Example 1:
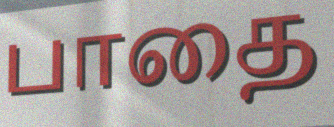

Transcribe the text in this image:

பாதை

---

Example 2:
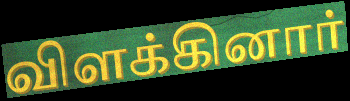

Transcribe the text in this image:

விளக்கினார்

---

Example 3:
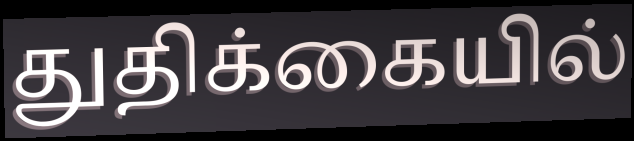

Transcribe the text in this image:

துதிக்கையில்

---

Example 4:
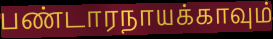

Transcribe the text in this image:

பண்டாரநாயக்காவும்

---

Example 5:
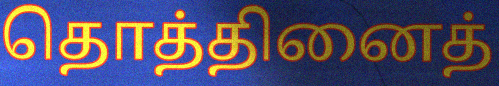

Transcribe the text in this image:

தொத்தினைத்